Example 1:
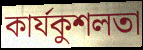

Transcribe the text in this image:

কাৰ্যকুশলতা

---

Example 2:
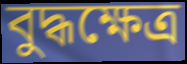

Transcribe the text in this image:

বুদ্ধক্ষেত্ৰ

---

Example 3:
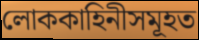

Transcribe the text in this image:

লোককাহিনীসমূহত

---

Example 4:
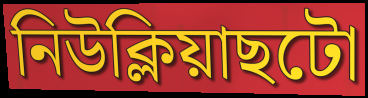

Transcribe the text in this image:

নিউক্লিয়াছটো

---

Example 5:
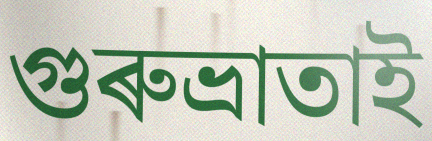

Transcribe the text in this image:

গুৰুভ্ৰাতাই